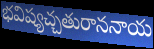
భవిష్యచ్చతురాననాయ